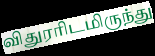
விதுரரிடமிருந்து